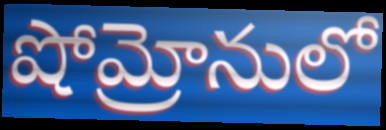
షోమ్రోనులో